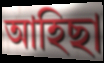
আহিছা